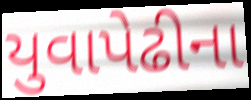
યુવાપેઢીના